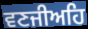
ਵਣਜੀਅਹਿ